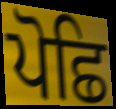
ਪੋਛਿ